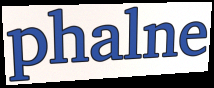
phalne